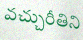
వచ్చురీతిని